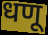
धणू